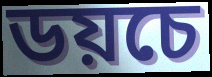
ডয়চে